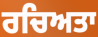
ਰਚਿਅਤਾ